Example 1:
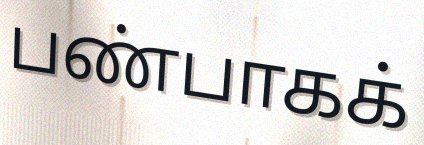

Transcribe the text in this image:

பண்பாகக்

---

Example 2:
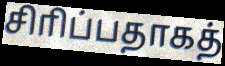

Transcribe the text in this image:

சிரிப்பதாகத்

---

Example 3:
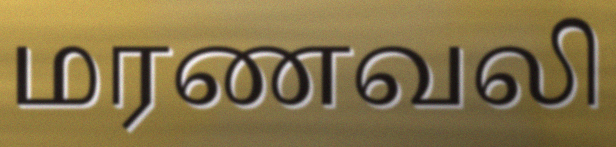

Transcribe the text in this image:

மரணவலி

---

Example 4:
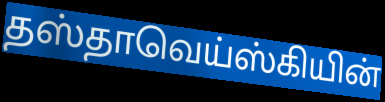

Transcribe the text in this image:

தஸ்தாவெய்ஸ்கியின்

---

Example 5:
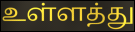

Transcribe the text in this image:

உள்ளத்து